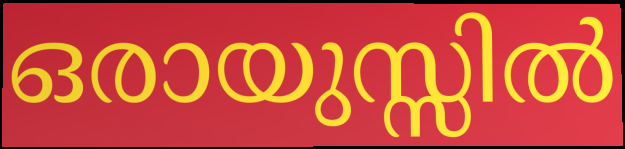
ഒരായുസ്സിൽ